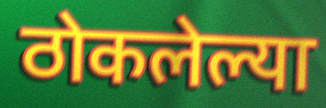
ठोकलेल्या